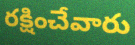
రక్షించేవారు